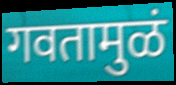
गवतामुळं